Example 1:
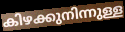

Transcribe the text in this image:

കിഴക്കുനിന്നുള്ള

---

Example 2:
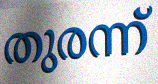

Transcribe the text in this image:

തുരന്ന്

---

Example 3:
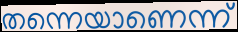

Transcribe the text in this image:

തന്നെയാണെന്ന്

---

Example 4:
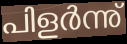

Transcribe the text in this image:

പിളർന്നു്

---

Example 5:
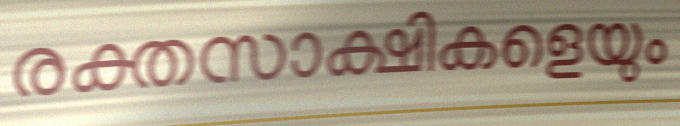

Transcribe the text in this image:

രക്തസാക്ഷികളെയും